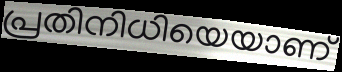
പ്രതിനിധിയെയാണ്